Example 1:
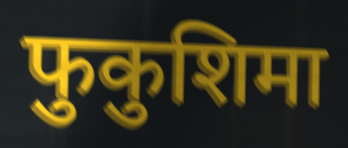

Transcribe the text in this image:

फुकुशिमा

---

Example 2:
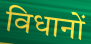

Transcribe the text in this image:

विधानों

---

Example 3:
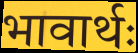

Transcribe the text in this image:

भावार्थः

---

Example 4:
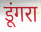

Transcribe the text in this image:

डूंगरा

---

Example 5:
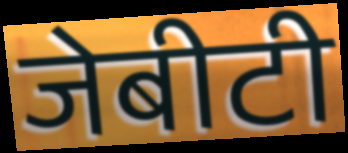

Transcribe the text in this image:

जेबीटी